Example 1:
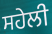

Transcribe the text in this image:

ਸਹੇਲੀ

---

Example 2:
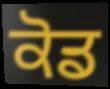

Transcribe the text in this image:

ਕੋਡ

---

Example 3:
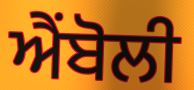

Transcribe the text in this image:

ਐਂਬੋਲੀ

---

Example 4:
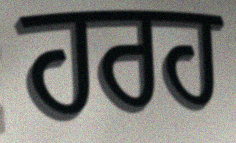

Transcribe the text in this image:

ਹਰਹ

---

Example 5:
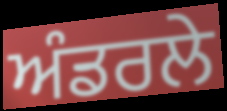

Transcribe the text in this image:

ਅੰਡਰਲੇ